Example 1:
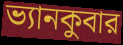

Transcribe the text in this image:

ভ্যানকুবার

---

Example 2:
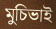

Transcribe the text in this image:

মুচিভাই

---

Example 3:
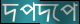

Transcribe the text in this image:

দপদপে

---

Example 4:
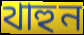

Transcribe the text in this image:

থাহুন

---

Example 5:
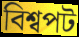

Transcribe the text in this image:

বিশ্বপট